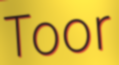
Toor